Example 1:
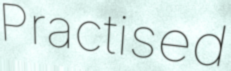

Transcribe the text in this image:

Practised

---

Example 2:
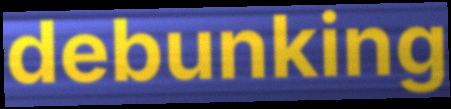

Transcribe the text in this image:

debunking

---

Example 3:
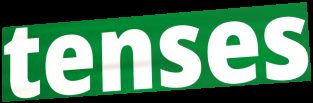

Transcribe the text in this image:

tenses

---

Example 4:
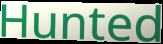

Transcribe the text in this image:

Hunted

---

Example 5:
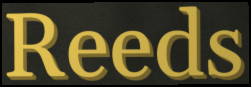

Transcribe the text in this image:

Reeds